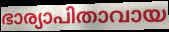
ഭാര്യാപിതാവായ